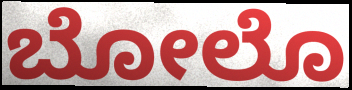
ಬೋಲೊ